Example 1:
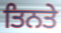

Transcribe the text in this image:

ਤਿਨਤੇ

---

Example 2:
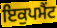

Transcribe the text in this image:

ਇਕੁਪਮੈਂਟ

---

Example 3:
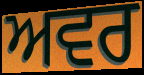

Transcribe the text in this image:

ਅਵਰ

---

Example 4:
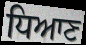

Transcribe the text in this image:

ਧਿਆਣ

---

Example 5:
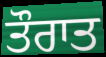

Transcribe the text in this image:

ਤੌਰਾਤ